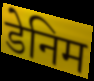
डेनिम